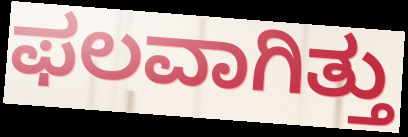
ಫಲವಾಗಿತ್ತು